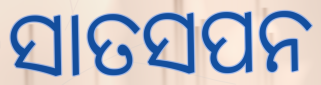
ସାତସପନ